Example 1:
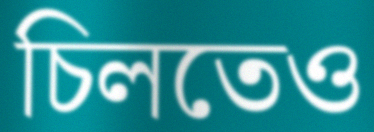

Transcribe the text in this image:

চিলতেও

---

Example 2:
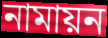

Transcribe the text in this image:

নামায়ন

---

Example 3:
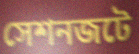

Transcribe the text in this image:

সেশনজটে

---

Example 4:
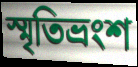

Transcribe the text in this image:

স্মৃতিভ্রংশ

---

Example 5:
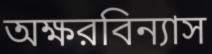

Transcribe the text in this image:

অক্ষরবিন্যাস